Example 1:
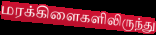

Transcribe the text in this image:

மரக்கிளைகளிலிருந்து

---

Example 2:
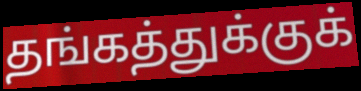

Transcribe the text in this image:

தங்கத்துக்குக்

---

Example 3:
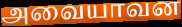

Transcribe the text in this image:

அவையாவன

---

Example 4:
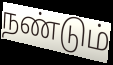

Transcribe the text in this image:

நண்டும்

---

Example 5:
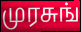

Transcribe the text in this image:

முரசுங்